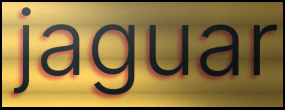
jaguar